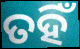
ତହିଁ